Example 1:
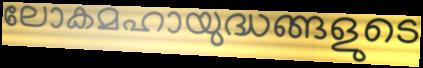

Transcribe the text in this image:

ലോകമഹായുദ്ധങ്ങളുടെ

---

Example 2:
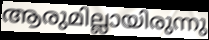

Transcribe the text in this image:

ആരുമില്ലായിരുന്നു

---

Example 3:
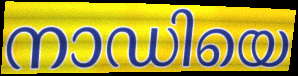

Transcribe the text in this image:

നാഡിയെ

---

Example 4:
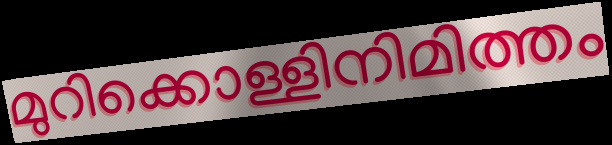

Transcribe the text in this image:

മുറിക്കൊള്ളിനിമിത്തം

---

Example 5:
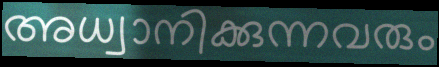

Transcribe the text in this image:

അധ്വാനിക്കുന്നവരും